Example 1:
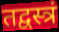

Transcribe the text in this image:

तद्वस्त्रं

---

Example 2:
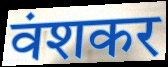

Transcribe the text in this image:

वंशकर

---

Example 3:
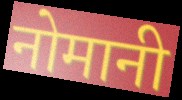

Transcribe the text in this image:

नोमानी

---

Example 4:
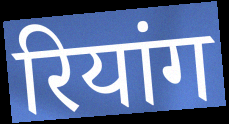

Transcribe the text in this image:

रियांग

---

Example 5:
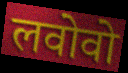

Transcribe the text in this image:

लवोवो